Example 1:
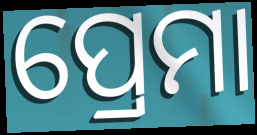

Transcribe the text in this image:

ପ୍ରେମା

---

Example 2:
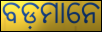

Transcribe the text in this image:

ବଡ଼ମାନେ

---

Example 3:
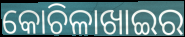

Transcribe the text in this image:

କୋଚିଳାଖାଇର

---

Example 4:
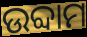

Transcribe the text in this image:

ଉବ୍ଦାମ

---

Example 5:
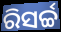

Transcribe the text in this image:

ରିସର୍ଚ୍ଚ